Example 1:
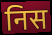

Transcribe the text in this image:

निस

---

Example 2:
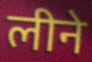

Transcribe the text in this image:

लीने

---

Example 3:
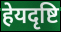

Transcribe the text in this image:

हेयदृष्टि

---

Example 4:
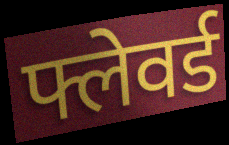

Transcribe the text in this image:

फ्लेवर्ड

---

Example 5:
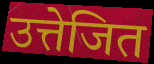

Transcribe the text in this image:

उत्तेजित